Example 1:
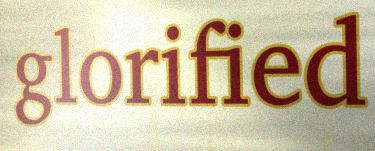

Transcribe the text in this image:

glorified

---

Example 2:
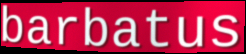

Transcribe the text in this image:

barbatus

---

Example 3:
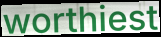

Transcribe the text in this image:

worthiest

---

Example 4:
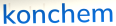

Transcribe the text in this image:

konchem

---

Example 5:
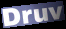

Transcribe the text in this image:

Druv